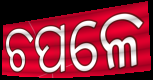
ଚପଳେ